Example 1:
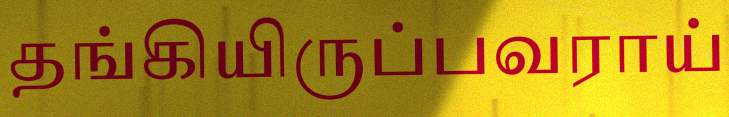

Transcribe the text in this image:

தங்கியிருப்பவராய்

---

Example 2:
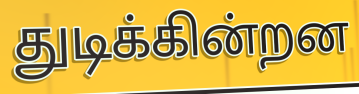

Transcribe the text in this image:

துடிக்கின்றன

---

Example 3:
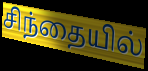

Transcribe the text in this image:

சிந்தையில்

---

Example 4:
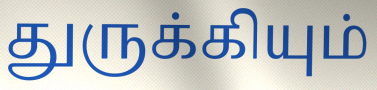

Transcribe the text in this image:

துருக்கியும்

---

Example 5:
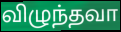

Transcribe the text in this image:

விழுந்தவா